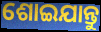
ଶୋଇଯାନ୍ତୁ